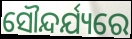
ସୌନ୍ଦର୍ଯ୍ୟରେ